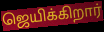
ஜெயிக்கிறார்